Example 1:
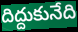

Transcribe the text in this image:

దిద్దుకునేది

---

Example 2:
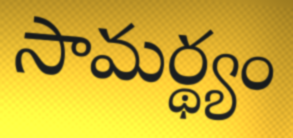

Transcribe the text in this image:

సామర్థ్యం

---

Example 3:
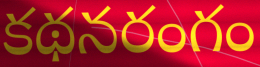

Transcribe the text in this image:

కథనరంగం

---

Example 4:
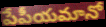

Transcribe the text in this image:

పేపీయమానో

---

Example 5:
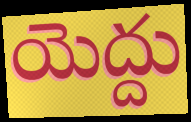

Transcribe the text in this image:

యెద్దు